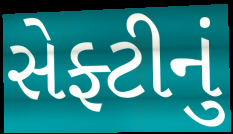
સેફ્ટીનું